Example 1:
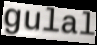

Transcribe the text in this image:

gulal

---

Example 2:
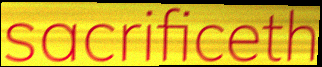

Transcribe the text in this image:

sacrificeth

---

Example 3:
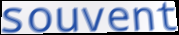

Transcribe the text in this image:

souvent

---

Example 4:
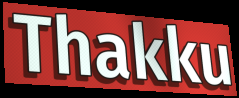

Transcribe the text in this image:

Thakku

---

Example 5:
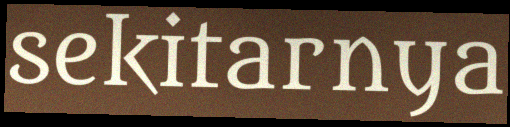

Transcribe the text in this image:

sekitarnya